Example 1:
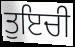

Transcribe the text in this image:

ਤੁਇਚੀ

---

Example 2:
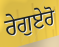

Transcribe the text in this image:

ਰੇਗੁਏਰੋ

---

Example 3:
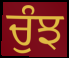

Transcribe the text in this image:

ਚੁੰਝ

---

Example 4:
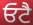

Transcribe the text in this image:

ਓਟੈ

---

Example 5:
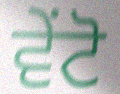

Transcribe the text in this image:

ਵੇਂਟੋ